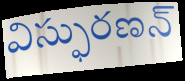
విస్ఫురణన్